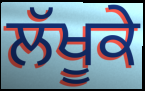
ਲੱਖੂਕੇ